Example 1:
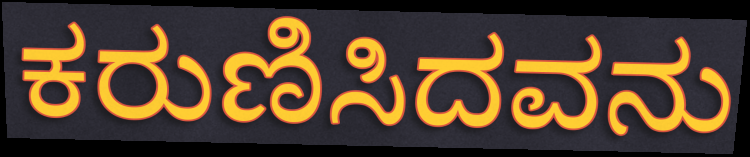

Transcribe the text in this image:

ಕರುಣಿಸಿದವನು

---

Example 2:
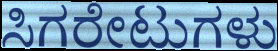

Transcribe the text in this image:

ಸಿಗರೇಟುಗಳು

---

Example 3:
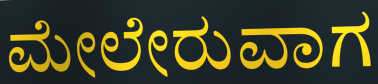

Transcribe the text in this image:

ಮೇಲೇರುವಾಗ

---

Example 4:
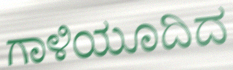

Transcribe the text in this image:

ಗಾಳಿಯೂದಿದ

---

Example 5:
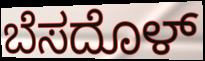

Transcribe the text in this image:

ಬೆಸದೊಳ್